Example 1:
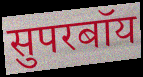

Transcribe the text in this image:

सुपरबॉय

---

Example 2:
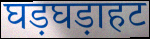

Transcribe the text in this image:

घड़घड़ाहट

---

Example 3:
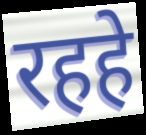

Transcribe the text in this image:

रहहे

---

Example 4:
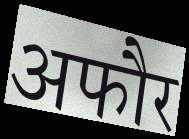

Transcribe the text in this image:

अफौर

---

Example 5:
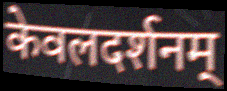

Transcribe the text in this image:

केवलदर्शनम्